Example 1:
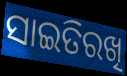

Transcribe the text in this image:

ସାଇତିରଖି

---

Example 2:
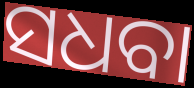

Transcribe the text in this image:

ସଧବା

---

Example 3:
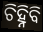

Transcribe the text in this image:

ଚିହ୍ନିବି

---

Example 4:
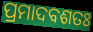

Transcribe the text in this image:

ପ୍ରମାଦବଶତଃ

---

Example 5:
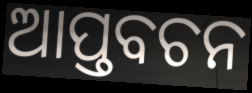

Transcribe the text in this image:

ଆପ୍ତବଚନ